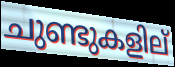
ചുണ്ടുകളില്